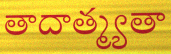
తాదాత్మ్యతా